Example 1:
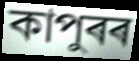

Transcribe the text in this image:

কাপুৰৰ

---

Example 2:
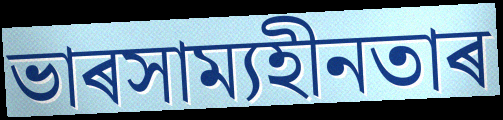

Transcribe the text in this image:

ভাৰসাম্যহীনতাৰ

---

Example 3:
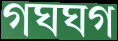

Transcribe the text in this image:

গঘঘগ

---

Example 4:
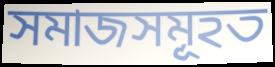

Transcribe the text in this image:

সমাজসমূহত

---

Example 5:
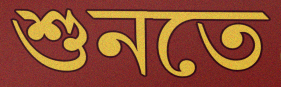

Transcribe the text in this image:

শুনতে